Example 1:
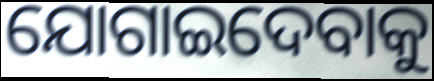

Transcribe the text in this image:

ଯୋଗାଇଦେବାକୁ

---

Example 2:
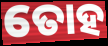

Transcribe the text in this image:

ତୋହ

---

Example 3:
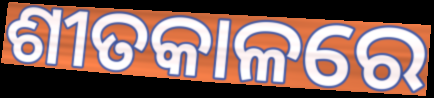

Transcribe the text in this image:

ଶୀତକାଳରେ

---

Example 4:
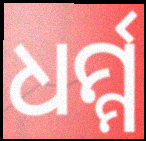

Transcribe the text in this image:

ଧର୍ମ୍ମ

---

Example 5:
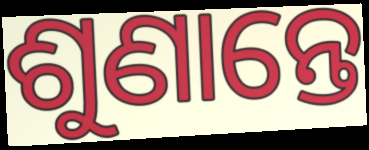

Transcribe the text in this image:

ଶୁଣାନ୍ତେ